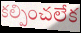
కల్పించలేక